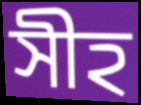
সীহ